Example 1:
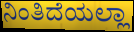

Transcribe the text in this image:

ನಿಂತಿದೆಯಲ್ಲಾ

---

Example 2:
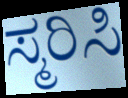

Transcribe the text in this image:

ಸ್ಮರಿಸಿ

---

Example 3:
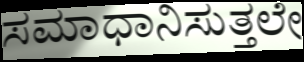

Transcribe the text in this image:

ಸಮಾಧಾನಿಸುತ್ತಲೇ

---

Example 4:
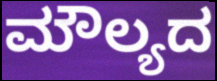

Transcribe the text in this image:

ಮೌಲ್ಯದ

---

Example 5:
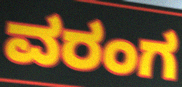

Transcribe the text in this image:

ವರಂಗ